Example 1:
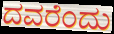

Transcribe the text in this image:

ದವರೆಂದು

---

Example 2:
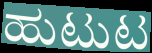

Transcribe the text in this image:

ಹುಟುಟ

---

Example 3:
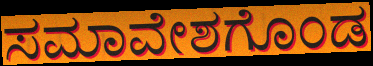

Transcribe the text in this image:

ಸಮಾವೇಶಗೊಂಡ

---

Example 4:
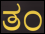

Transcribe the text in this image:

ತಂ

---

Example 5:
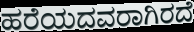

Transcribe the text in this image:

ಹರೆಯದವರಾಗಿರದೆ